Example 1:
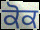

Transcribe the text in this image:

ਕੋਕ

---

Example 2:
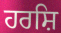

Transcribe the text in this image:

ਹਰਸ਼ਿ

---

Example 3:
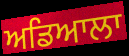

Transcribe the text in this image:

ਅਡਿਆਲਾ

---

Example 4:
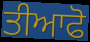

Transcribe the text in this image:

ਤੀਆਫੋ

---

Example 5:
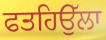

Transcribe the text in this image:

ਫਤਹਿਉੱਲਾ